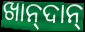
ଖାନ୍‍ଦାନ୍